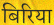
बिरिया